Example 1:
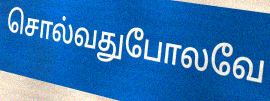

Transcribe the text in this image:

சொல்வதுபோலவே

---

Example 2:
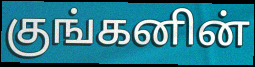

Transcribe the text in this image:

குங்கனின்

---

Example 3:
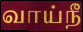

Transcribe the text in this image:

வாய்நீ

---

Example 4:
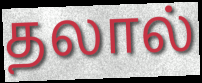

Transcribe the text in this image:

தலால்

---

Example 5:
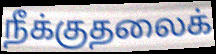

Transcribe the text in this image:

நீக்குதலைக்